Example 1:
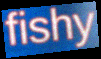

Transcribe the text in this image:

fishy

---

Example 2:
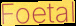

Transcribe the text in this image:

Foetal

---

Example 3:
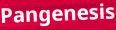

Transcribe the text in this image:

Pangenesis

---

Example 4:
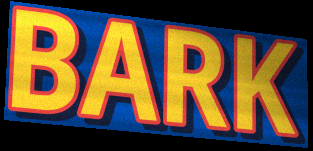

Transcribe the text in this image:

BARK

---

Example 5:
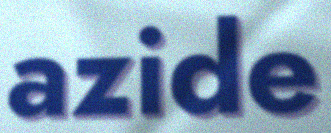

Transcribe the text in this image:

azide